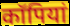
कॉपियां